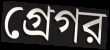
গ্রেগর